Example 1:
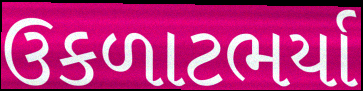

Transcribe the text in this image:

ઉકળાટભર્યા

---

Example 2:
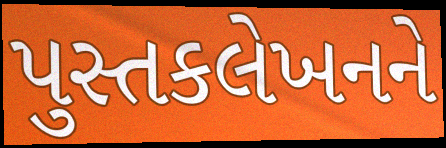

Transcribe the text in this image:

પુસ્તકલેખનને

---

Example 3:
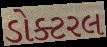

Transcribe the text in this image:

ડોક્ટરલ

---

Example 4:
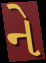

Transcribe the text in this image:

ને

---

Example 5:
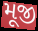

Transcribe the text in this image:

મૂજી